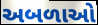
અબળાઓ